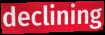
declining